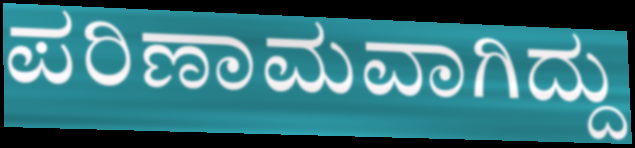
ಪರಿಣಾಮವಾಗಿದ್ದು